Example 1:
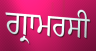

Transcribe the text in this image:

ਗ੍ਰਾਮਰਸੀ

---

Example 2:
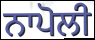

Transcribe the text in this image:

ਨਾਪੋਲੀ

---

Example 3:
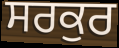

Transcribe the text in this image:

ਸਰਕੁਰ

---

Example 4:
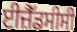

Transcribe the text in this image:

ਈਜ਼ੈੱਡਸੀਸੀ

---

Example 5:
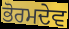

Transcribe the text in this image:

ਭੋਰਮਦੇਵ